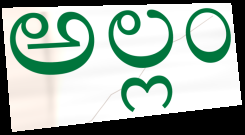
అల్లం